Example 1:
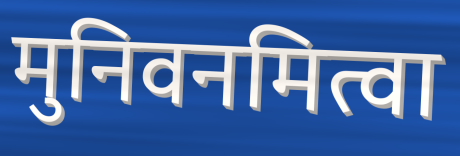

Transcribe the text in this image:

मुनिवनमित्वा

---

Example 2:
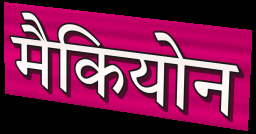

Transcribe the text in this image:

मैकियोन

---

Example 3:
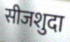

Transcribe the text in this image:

सीजशुदा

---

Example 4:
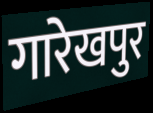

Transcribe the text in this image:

गारेखपुर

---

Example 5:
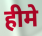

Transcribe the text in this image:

हीमे